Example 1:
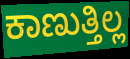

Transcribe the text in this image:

ಕಾಣುತ್ತಿಲ್ಲ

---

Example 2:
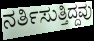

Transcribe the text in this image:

ನರ್ತಿಸುತ್ತಿದ್ದವು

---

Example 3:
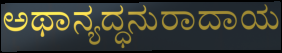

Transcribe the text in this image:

ಅಥಾನ್ಯದ್ಧನುರಾದಾಯ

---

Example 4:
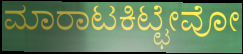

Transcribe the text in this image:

ಮಾರಾಟಕಿಟ್ಟೇವೋ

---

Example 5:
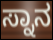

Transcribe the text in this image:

ಸ್ನಾನ